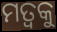
ମତ୍ୱକୁ